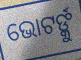
ଭୋଟର୍ଙ୍କୁ